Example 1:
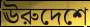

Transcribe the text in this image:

ঊরুদেশে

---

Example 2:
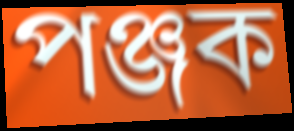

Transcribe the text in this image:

পঞ্জক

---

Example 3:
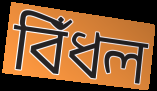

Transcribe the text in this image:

বিঁধল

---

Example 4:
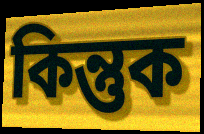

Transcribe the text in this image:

কিন্তুক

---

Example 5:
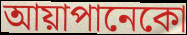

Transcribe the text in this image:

আয়াপানেকো